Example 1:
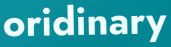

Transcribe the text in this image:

oridinary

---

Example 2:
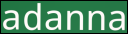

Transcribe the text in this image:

adanna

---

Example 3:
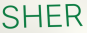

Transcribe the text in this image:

SHER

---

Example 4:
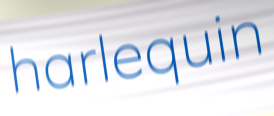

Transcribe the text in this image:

harlequin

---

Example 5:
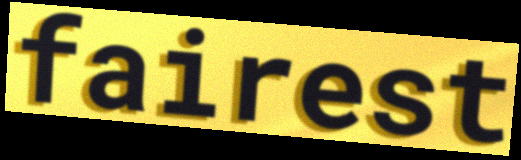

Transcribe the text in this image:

fairest